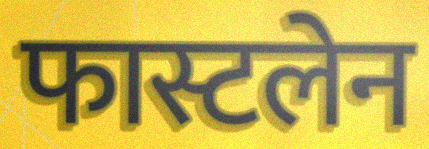
फास्टलेन